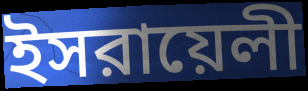
ইসরায়েলী